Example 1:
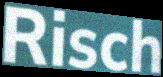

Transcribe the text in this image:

Risch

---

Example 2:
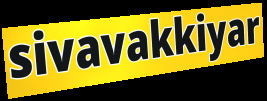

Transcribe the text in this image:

sivavakkiyar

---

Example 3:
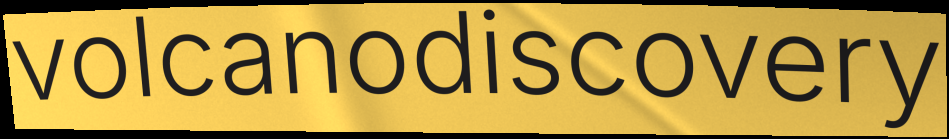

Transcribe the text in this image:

volcanodiscovery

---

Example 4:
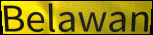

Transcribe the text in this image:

Belawan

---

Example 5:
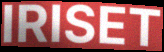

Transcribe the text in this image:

IRISET